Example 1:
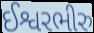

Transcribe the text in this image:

ઈશ્વરભીરુ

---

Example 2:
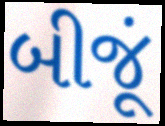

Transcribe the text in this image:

બીજૂં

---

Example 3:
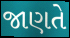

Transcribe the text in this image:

જાણતે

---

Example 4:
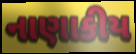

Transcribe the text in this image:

નાણાકીય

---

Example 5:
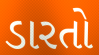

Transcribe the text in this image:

ડારતો